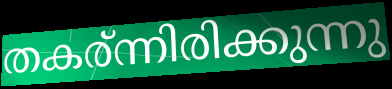
തകര്ന്നിരിക്കുന്നു